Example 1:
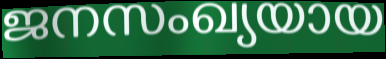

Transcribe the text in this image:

ജനസംഖ്യയായ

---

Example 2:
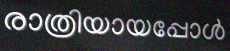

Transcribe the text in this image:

രാത്രിയായപ്പോൾ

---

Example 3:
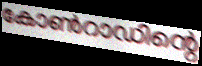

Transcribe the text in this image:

കോൺറാഡിന്റെ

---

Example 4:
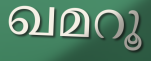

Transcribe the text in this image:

ഖമറൂ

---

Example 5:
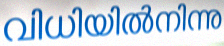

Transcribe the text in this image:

വിധിയിൽനിന്നു